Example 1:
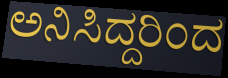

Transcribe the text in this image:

ಅನಿಸಿದ್ದರಿಂದ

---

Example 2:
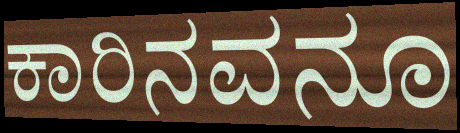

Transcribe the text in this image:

ಕಾರಿನವನೂ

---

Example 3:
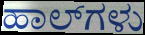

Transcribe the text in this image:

ಹಾಲ್‌ಗಳು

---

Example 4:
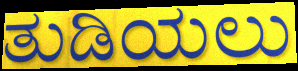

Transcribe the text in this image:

ತುಡಿಯಲು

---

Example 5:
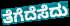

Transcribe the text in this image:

ತೆಗೆದೆಸೆದು